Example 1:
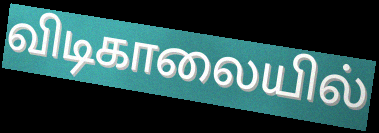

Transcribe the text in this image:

விடிகாலையில்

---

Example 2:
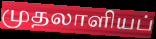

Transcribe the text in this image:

முதலாளியப்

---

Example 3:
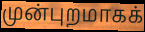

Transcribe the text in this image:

முன்புறமாகக்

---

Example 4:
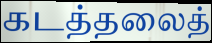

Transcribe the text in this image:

கடத்தலைத்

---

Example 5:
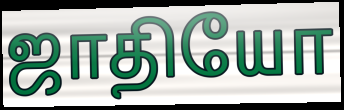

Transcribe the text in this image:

ஜாதியோ